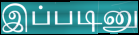
இப்படினு